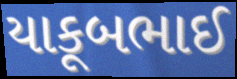
યાકૂબભાઈ